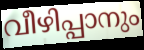
വീഴിപ്പാനും